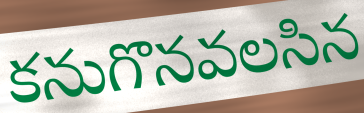
కనుగొనవలసిన